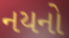
નયનો